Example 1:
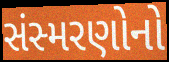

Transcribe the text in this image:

સંસ્મરણોનો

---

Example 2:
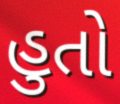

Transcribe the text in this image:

હુતો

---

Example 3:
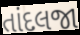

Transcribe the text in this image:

તાંદલજા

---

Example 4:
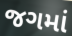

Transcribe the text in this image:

જગમાં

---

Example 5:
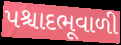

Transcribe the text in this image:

પશ્ચાદભૂવાળી